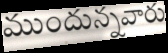
ముందున్నవారు